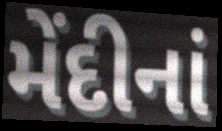
મેંદીનાં